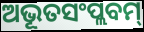
ଅଭୂତସଂପ୍ଲବମ୍